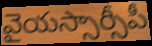
వైయస్సార్సీపీ